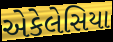
એકેલેસિયા